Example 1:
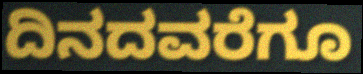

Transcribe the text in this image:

ದಿನದವರೆಗೂ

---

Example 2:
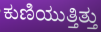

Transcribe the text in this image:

ಕುಣಿಯುತ್ತಿತ್ತು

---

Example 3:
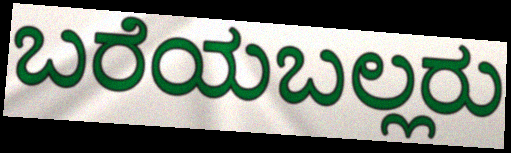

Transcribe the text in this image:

ಬರೆಯಬಲ್ಲರು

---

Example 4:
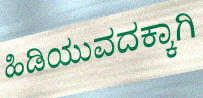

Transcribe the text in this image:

ಹಿಡಿಯುವದಕ್ಕಾಗಿ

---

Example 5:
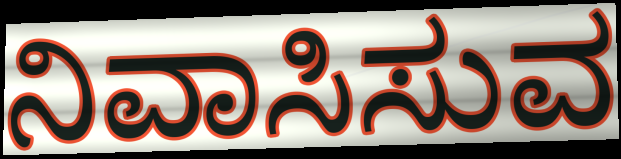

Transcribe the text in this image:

ನಿವಾಸಿಸುವ